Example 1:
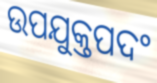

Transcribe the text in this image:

ଉପଯୁକ୍ତପଦଂ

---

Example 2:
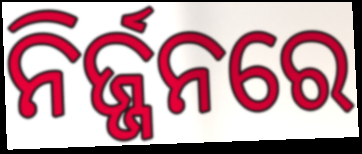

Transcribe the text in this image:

ନିର୍ଜ୍ଜନରେ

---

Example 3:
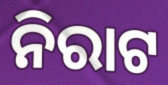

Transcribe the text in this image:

ନିରାଟ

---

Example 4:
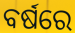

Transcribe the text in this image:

ବର୍ଷରେ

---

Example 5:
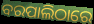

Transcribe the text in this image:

ବରପାଲିଠାରେ